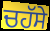
ਚਹੱਸੇ